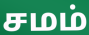
சமம்